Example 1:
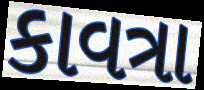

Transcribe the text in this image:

કાવત્રા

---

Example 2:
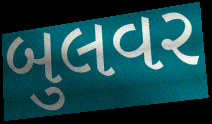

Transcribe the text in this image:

બુલવર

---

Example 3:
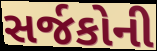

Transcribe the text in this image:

સર્જકોની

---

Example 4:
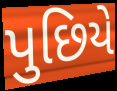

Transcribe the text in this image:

પુછિયે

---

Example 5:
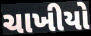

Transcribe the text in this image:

ચાખીયો